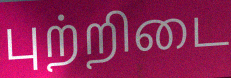
புற்றிடை